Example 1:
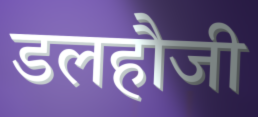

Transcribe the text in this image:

डलहौजी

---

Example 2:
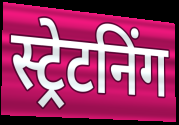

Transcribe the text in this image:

स्ट्रेटनिंग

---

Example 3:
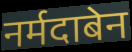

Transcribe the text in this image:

नर्मदाबेन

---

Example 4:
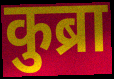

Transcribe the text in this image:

कुब्रा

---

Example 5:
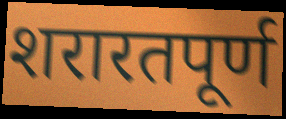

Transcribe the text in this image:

शरारतपूर्ण